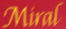
Miral